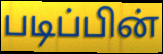
படிப்பின்